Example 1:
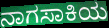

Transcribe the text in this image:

ನಾಗಸಾಕಿಯ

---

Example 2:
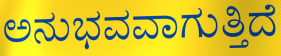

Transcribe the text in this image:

ಅನುಭವವಾಗುತ್ತಿದೆ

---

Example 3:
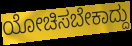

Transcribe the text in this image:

ಯೋಚಿಸಬೇಕಾದ್ದು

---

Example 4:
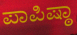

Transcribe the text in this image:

ಪಾಪಿಷ್ಠಾ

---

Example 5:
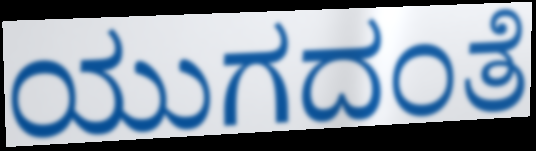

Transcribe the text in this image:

ಯುಗದಂತೆ